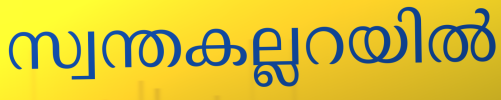
സ്വന്തകല്ലറയിൽ